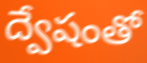
ద్వేషంతో